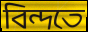
বিন্দতে